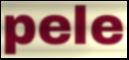
pele